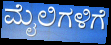
ಮೈಲಿಗಳಿಗೆ